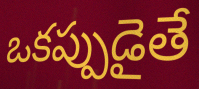
ఒకప్పుడైతే